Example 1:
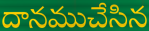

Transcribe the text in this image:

దానముచేసిన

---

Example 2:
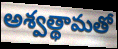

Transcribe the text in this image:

అశ్వత్థామతో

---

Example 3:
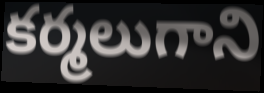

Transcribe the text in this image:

కర్మలుగాని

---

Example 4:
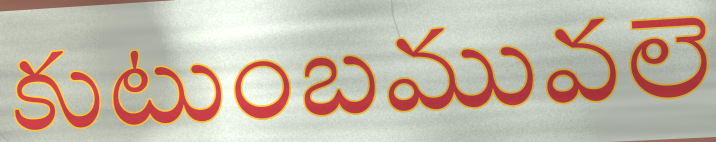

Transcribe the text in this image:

కుటుంబమువలె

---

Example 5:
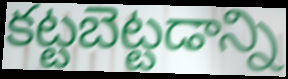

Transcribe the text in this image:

కట్టబెట్టడాన్ని